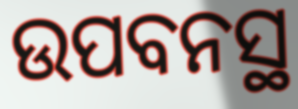
ଉପବନସ୍ଥ